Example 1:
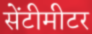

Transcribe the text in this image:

सेंटीमीटर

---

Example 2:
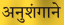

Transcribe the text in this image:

अनुशंगाने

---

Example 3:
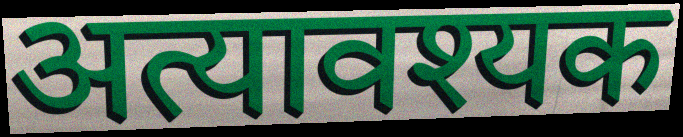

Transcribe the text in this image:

अत्यावश्‍यक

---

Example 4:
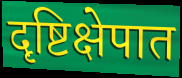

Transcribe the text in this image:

दृष्टिक्षेपात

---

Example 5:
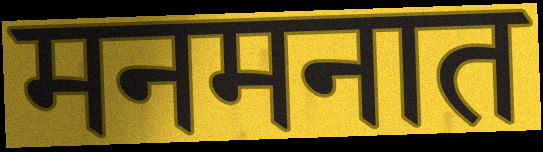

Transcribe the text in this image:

मनमनात